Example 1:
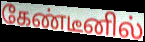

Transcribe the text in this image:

கேண்டீனில்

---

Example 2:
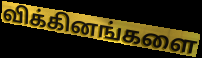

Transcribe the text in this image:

விக்கினங்களை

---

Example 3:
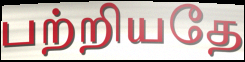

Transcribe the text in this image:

பற்றியதே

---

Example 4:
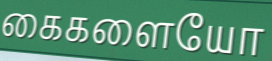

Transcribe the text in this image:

கைகளையோ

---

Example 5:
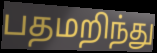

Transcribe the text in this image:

பதமறிந்து